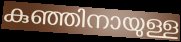
കുഞ്ഞിനായുള്ള